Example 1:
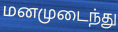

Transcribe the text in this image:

மனமுடைந்து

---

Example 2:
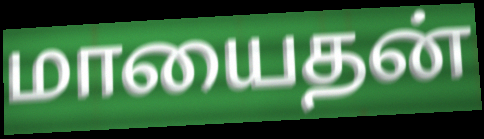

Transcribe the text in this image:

மாயைதன்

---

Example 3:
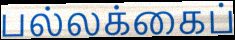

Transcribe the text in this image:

பல்லக்கைப்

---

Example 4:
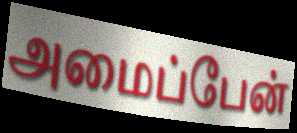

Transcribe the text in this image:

அமைப்பேன்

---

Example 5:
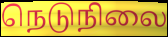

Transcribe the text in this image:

நெடுநிலை